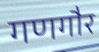
गणगौर